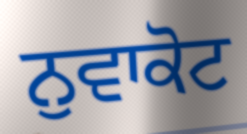
ਨੁਵਾਕੋਟ